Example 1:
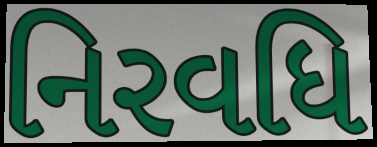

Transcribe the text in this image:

નિરવધિ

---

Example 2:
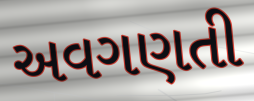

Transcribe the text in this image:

અવગણતી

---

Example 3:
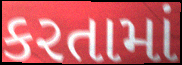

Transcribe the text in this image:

કરતામાં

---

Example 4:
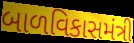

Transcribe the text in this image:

બાળવિકાસમંત્રી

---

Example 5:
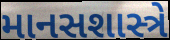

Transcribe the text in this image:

માનસશાસ્ત્રે